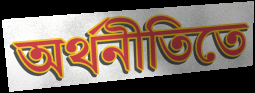
অর্থনীতিতে